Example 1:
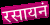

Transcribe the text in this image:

रसायनं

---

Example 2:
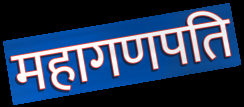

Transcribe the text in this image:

महागणपति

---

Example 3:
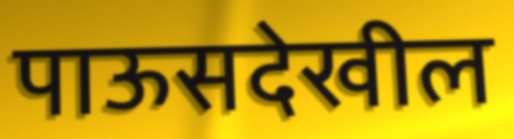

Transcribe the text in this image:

पाऊसदेखील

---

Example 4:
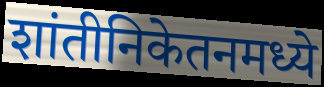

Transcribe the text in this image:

शांतीनिकेतनमध्ये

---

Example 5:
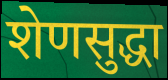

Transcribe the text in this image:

शेणसुद्धा